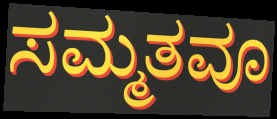
ಸಮ್ಮತವೂ